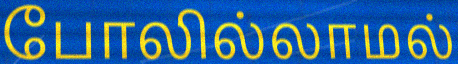
போலில்லாமல்